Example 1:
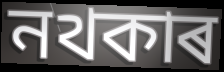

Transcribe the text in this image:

নথকাৰ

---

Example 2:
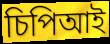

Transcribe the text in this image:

চিপিআই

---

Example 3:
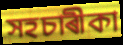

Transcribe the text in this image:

সহচাৰীকা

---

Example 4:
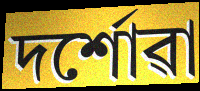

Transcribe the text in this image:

দৰ্শোৱা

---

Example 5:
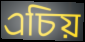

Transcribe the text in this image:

এচিয়